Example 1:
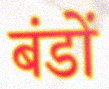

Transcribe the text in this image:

बंडों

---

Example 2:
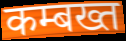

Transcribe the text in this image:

कम्बख्त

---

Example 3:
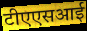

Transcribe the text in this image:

टीएएसआई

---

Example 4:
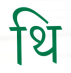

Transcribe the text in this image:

थि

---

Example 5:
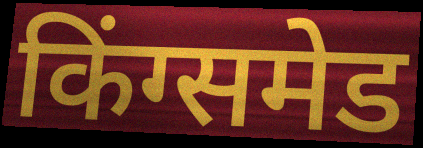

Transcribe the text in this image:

किंग्समेड